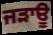
ਜੜਾਊ